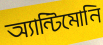
অ্যান্টিমোনি